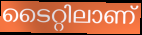
ടൈറ്റിലാണ്